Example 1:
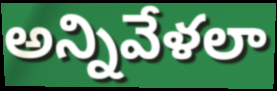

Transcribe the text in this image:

అన్నివేళలా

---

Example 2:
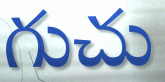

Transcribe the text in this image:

గుచు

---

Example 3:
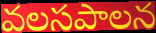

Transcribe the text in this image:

వలసపాలన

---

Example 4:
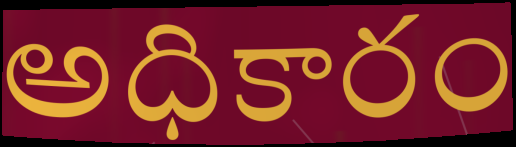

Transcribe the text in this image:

అధికారం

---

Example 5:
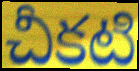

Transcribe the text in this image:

చీకటి